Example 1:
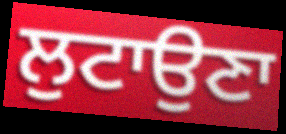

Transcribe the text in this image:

ਲੁਟਾਉਣਾ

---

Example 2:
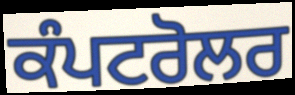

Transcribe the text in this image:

ਕੰਪਟਰੋਲਰ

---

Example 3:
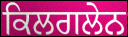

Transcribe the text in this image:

ਕਿਲਗਲੇਨ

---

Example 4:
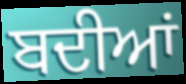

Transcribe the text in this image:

ਬਦੀਆਂ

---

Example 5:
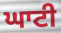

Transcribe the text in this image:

ਘਾਟੀ